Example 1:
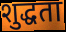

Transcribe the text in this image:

शुद्धता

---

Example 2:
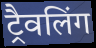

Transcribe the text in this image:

ट्रैवलिंग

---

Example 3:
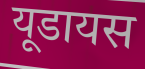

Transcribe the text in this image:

यूडायस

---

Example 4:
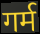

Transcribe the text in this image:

गर्म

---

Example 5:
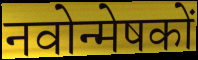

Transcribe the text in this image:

नवोन्मेषकों